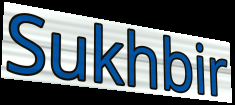
Sukhbir